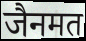
जैनमत